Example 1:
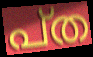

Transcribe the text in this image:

പ്‌ത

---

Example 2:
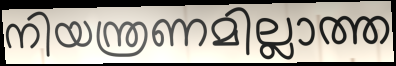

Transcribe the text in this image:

നിയന്ത്രണമില്ലാത്ത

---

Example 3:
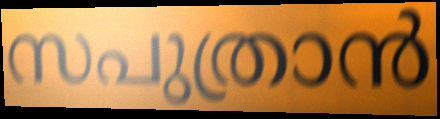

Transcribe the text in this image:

സപുത്രാൻ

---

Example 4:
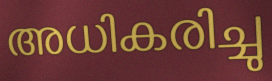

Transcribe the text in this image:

അധികരിച്ചു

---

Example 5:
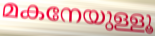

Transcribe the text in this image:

മകനേയുള്ളൂ